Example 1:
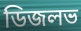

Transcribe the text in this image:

ডিজলভ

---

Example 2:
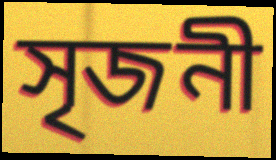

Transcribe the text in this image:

সৃজনী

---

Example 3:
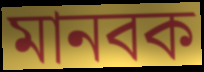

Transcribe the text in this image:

মানবক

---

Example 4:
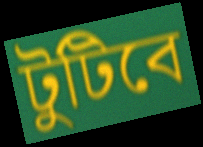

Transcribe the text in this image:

টুটিবে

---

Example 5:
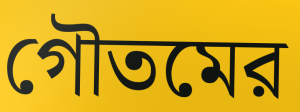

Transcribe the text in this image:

গৌতমের